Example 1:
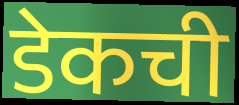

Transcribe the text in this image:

डेकची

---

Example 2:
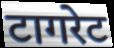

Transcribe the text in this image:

टागरेट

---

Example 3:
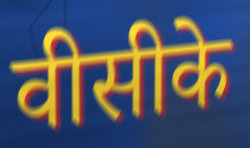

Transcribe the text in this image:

वीसीके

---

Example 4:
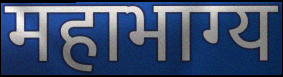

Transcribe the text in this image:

महाभाग्य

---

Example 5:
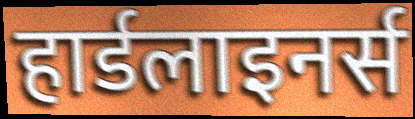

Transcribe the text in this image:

हार्डलाइनर्स